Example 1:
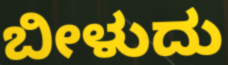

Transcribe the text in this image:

ಬೀಳುದು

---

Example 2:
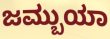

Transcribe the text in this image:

ಜಮ್ಬುಯಾ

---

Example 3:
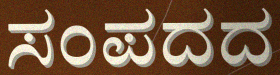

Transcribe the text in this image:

ಸಂಪದದ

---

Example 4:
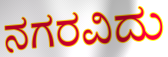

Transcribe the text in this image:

ನಗರವಿದು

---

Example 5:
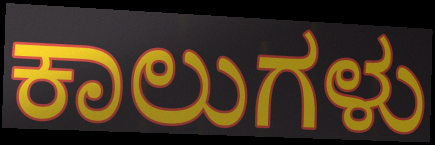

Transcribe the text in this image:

ಕಾಲುಗಳು